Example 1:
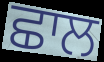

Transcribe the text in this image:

ਛਾਲ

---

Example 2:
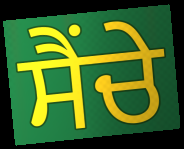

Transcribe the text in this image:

ਸੈਂਚੇ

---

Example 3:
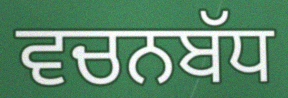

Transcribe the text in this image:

ਵਚਨਬੱਧ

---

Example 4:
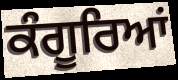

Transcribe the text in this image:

ਕੰਗੂਰਿਆਂ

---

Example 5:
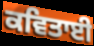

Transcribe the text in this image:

ਕਵਿਤਾਈ